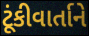
ટૂંકીવાર્તાને